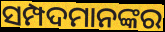
ସମ୍ପଦମାନଙ୍କର